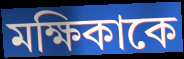
মক্ষিকাকে